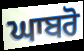
ਘਾਬਰੋ